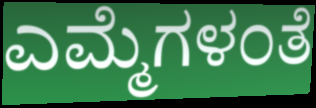
ಎಮ್ಮೆಗಳಂತೆ